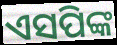
ଏସପିଙ୍କ